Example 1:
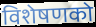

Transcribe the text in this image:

विशेषणको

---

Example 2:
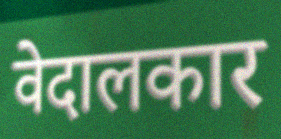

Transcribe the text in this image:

वेदालकार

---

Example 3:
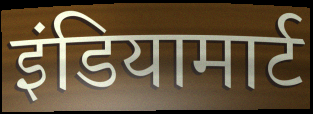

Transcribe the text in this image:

इंडियामार्ट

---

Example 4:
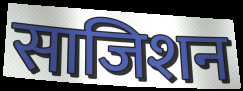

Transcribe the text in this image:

साजिशन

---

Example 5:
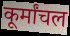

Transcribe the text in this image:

कूर्मांचल